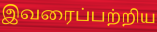
இவரைப்பற்றிய